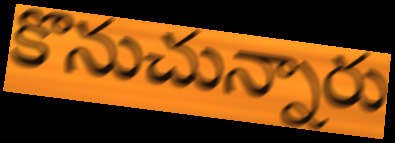
కొనుచున్నారు